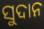
ସୁଦାନ